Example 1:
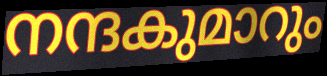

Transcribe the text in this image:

നന്ദകുമാറും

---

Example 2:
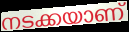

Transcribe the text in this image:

നടക്കയാണ്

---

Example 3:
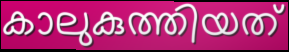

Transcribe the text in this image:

കാലുകുത്തിയത്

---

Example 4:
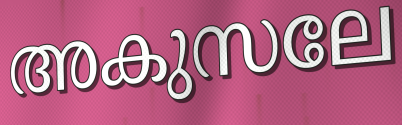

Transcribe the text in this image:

അകുസലേ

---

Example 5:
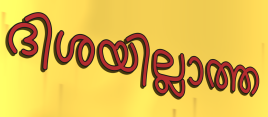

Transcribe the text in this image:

ദിശയില്ലാത്ത